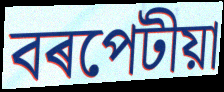
বৰপেটীয়া